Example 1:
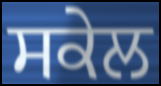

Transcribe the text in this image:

ਸਕੇਲ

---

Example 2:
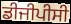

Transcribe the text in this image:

ਡੀਜੀਪੀਸੀ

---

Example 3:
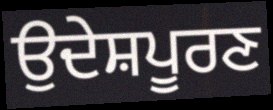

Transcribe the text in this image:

ਉਦੇਸ਼ਪੂਰਣ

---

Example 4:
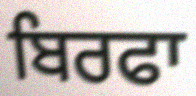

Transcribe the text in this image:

ਬਿਰਫਾ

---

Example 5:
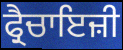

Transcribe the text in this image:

ਫ੍ਰੈਚਾਇਜ਼ੀ